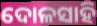
ଦୋଳସାହି